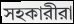
সহকারীরা